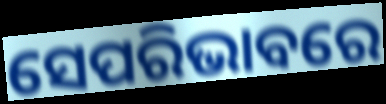
ସେପରିଭାବରେ